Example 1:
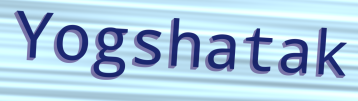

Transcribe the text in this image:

Yogshatak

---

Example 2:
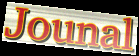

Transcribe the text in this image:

Jounal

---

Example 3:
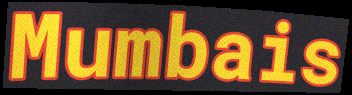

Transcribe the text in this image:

Mumbais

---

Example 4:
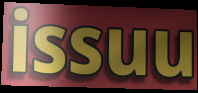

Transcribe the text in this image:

issuu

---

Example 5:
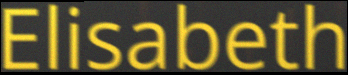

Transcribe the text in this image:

Elisabeth